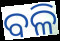
ବଳି